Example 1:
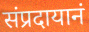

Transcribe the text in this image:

संप्रदायानं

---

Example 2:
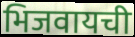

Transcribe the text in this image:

भिजवायची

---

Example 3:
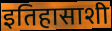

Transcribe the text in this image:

इतिहासाशी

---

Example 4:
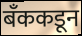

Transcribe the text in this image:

बँककडून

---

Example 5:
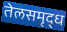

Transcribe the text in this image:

तेलसमृद्ध